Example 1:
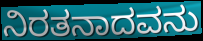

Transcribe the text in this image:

ನಿರತನಾದವನು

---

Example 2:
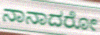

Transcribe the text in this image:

ನಾನಾದರೋ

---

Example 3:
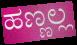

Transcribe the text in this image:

ಹಣ್ಣಲ್ಲ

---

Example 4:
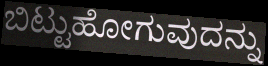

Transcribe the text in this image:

ಬಿಟ್ಟುಹೋಗುವುದನ್ನು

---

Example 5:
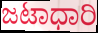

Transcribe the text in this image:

ಜಟಾಧಾರಿ